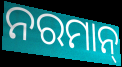
ନରମାନ୍